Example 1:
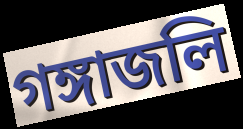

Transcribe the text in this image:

গঙ্গাজলি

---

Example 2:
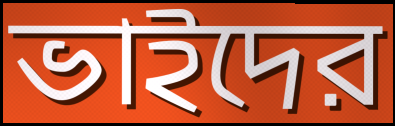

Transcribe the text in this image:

ভাইদের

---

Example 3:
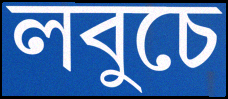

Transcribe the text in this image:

লবুচে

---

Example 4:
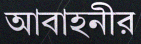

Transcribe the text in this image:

আবাহনীর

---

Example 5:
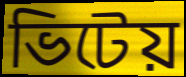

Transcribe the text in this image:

ভিটেয়